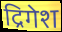
द्रिगेश